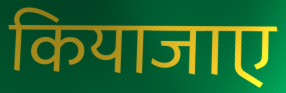
कियाजाए